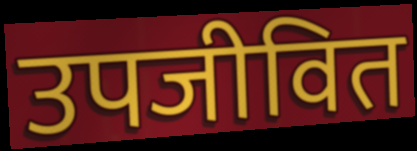
उपजीवित